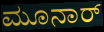
ಮೂನಾರ್